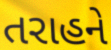
તરાહને